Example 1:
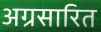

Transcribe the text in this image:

अग्रसारित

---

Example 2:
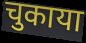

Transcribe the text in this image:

चुकाया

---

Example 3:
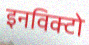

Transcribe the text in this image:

इनविक्टो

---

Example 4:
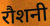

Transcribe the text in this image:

रौशनी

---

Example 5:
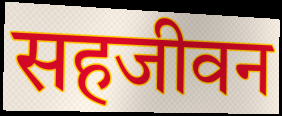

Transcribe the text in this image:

सहजीवन